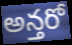
అన్తరో